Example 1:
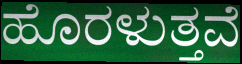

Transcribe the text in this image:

ಹೊರಳುತ್ತವೆ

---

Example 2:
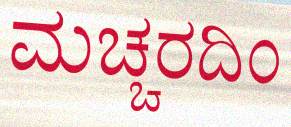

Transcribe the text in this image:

ಮಚ್ಚರದಿಂ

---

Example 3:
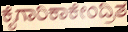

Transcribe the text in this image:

ಕೈಗಾರಿಕಾಕೇಂದ್ರಿತ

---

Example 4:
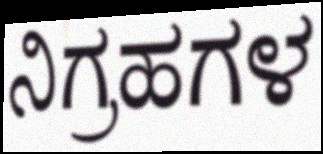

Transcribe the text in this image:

ನಿಗ್ರಹಗಳ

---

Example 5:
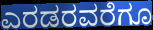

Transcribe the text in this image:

ಎರಡರವರೆಗೂ